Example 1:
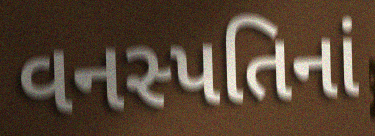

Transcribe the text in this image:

વનસ્પતિનાં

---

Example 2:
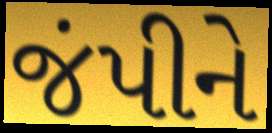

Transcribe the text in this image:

જંપીને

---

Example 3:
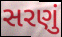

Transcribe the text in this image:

સરણું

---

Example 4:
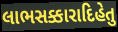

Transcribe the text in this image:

લાભસક્કારાદિહેતુ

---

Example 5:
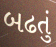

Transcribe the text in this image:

બઢતું